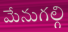
మేనుగల్గి